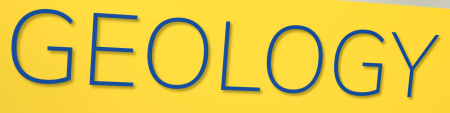
GEOLOGY